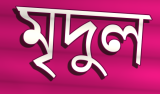
মৃদুল